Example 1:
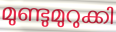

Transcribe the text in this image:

മുണ്ടുമുറുക്കി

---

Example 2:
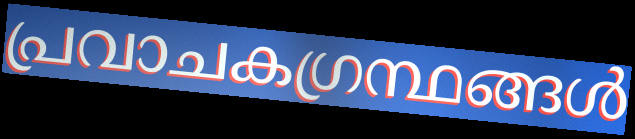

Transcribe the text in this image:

പ്രവാചകഗ്രന്ഥങ്ങൾ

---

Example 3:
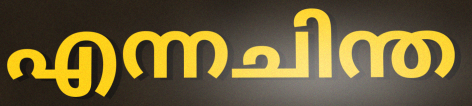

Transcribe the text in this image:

എന്നചിന്ത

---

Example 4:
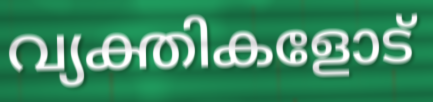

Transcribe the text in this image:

വ്യക്തികളോട്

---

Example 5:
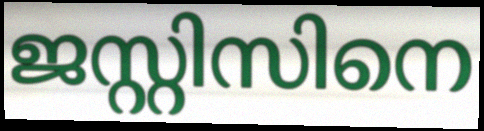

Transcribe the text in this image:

ജസ്റ്റിസിനെ